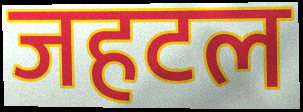
जहटल